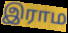
இராம